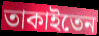
তাকাইতেন